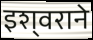
इश्वराने